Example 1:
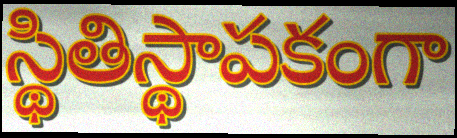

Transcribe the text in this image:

స్థితిస్థాపకంగా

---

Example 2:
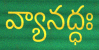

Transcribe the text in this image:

వ్యానద్ధః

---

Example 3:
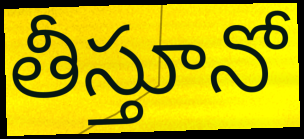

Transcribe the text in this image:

తీస్తూనో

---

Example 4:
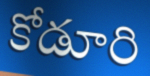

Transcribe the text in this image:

కోడూరి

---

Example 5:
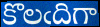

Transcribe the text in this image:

కొలఁదిగా